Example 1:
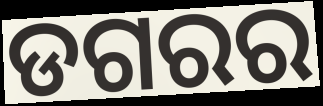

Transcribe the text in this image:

ଡଗରର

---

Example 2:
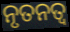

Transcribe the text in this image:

ନୃତନତ୍ୱ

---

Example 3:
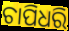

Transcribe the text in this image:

ଚାପିଧରି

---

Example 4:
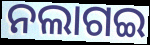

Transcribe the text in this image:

ନଲାଗଇ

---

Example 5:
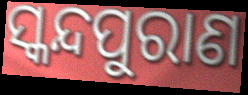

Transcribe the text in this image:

ସ୍କନ୍ଦପୁରାଣ